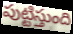
పుట్టిస్తుంది